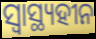
ସ୍ୱାସ୍ଥ୍ୟହୀନ